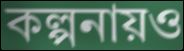
কল্পনায়ও